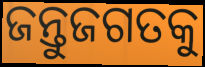
ଜନ୍ତୁଜଗତକୁ